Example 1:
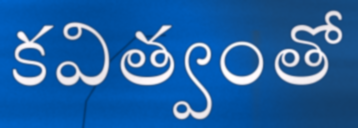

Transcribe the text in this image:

కవిత్వంతో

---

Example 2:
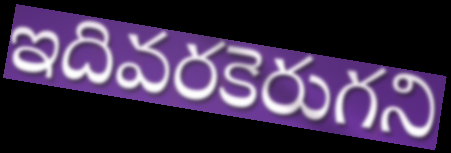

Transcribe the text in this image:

ఇదివరకెరుగని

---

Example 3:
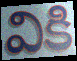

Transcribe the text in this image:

వికి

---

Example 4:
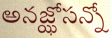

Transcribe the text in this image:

అనజ్ఝోసన్నో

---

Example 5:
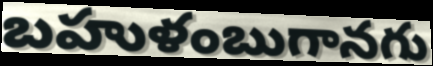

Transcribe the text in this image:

బహుళంబుగానగు